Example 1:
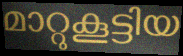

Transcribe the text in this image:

മാറ്റുകൂട്ടിയ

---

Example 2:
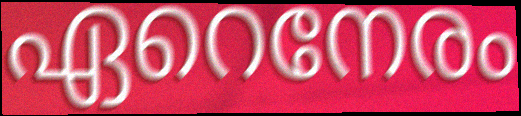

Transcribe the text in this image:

ഏറെനേരം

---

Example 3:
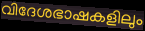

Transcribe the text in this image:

വിദേശഭാഷകളിലും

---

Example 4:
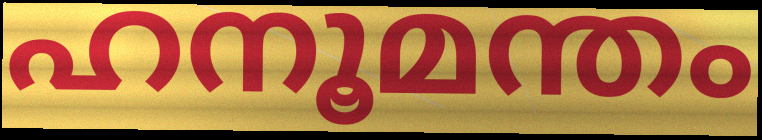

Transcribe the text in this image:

ഹനൂമന്തം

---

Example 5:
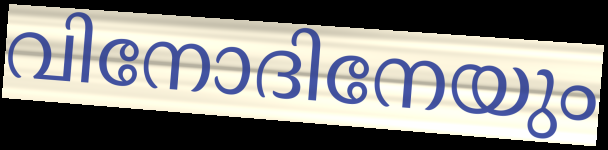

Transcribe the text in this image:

വിനോദിനേയും